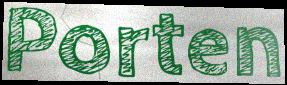
Porten